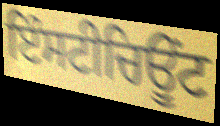
ਇੰਸਟੀਚਿਊਂਟ